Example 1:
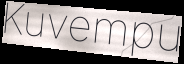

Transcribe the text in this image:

Kuvempu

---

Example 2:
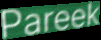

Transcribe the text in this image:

Pareek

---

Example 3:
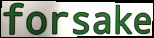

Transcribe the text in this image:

forsake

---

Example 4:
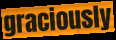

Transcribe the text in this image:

graciously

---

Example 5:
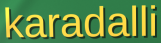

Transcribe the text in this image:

karadalli